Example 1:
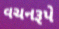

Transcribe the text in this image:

વચનરૂપે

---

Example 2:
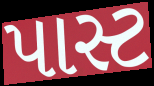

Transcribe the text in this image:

પાસ્ટ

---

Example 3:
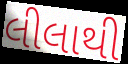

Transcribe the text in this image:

લીલાથી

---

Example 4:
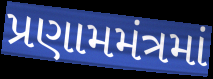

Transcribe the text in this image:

પ્રણામમંત્રમાં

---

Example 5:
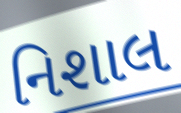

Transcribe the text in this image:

નિશાલ